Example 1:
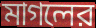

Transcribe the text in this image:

মাগলের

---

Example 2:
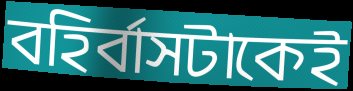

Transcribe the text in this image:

বহির্বাসটাকেই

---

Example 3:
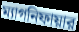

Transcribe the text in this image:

ম্যাগনিফায়ার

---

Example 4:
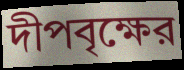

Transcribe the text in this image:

দীপবৃক্ষের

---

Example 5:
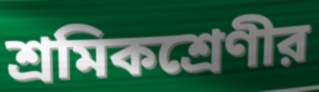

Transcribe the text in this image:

শ্রমিকশ্রেণীর